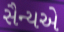
સૈન્યએ